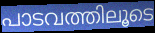
പാടവത്തിലൂടെ